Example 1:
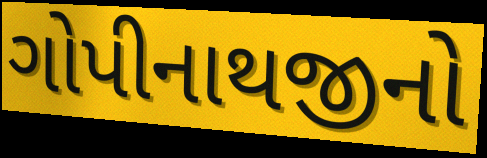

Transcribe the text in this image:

ગોપીનાથજીનો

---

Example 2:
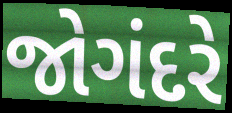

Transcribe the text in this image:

જોગંદરે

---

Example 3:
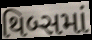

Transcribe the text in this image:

થિબ્સમાં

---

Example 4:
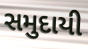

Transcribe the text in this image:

સમુદાયી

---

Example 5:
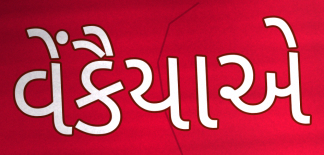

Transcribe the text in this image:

વેંકૈયાએ